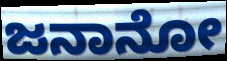
ಜನಾನೋ